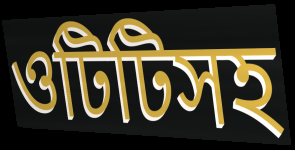
ওটিটিসহ